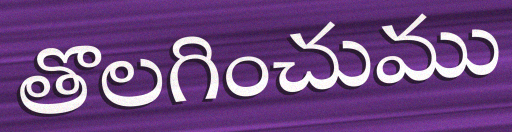
తొలగించుము